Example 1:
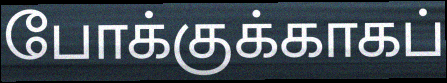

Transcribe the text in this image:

போக்குக்காகப்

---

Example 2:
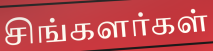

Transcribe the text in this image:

சிங்களர்கள்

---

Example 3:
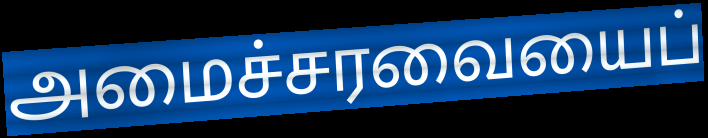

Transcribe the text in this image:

அமைச்சரவையைப்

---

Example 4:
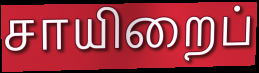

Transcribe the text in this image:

சாயிறைப்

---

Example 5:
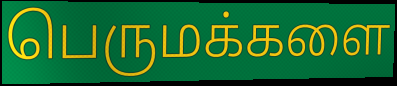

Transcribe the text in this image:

பெருமக்களை